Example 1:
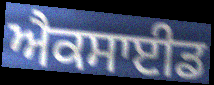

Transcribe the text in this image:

ਐਕਸਾਈਡ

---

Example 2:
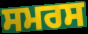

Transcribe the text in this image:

ਸਮਰਸ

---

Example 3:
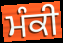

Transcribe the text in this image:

ਮੰਕੀ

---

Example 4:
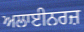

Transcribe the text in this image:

ਅਲਾਈਨਰਜ਼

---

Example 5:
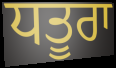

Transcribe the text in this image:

ਧਤੂਰਾ